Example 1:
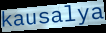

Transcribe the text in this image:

kausalya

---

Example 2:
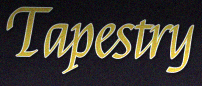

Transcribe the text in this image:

Tapestry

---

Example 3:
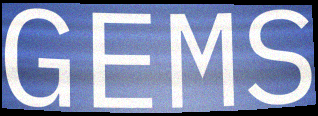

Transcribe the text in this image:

GEMS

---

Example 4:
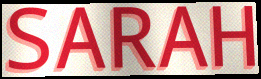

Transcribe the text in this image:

SARAH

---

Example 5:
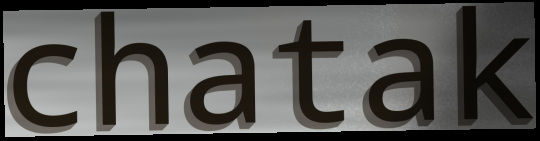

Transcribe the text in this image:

chatak